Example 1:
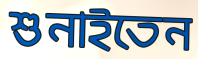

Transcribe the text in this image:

শুনাইতেন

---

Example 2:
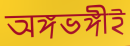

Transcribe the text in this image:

অঙ্গভঙ্গীই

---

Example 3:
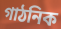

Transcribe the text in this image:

গাঠনিক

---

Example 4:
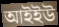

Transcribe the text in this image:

আইইউ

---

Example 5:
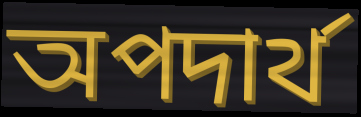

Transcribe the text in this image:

অপদার্থ